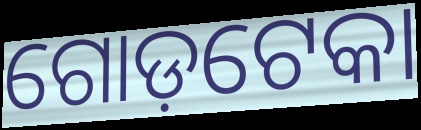
ଗୋଡ଼ଟେକା